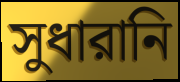
সুধারানি